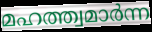
മഹത്ത്വമാർന്ന